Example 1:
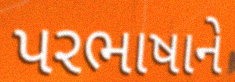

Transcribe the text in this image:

પરભાષાને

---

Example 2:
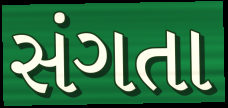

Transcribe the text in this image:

સંગતા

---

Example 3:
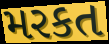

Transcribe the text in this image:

મરકત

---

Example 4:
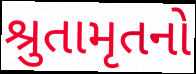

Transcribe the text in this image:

શ્રુતામૃતનો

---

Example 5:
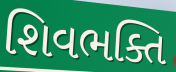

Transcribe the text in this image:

શિવભક્તિ